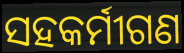
ସହକର୍ମୀଗଣ